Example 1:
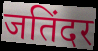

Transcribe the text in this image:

जतिंदर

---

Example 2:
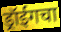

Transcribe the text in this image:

ड्रॉईंगचा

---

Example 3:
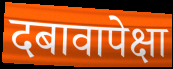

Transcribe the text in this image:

दबावापेक्षा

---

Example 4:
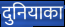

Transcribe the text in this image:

दुनियाका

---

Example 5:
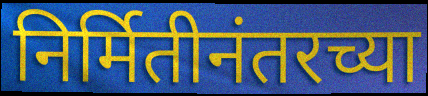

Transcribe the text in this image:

निर्मितीनंतरच्या